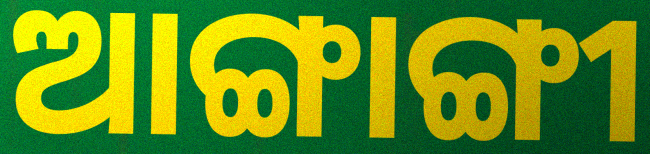
ଆଙ୍ଗାଙ୍ଗୀ